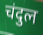
चंदुल